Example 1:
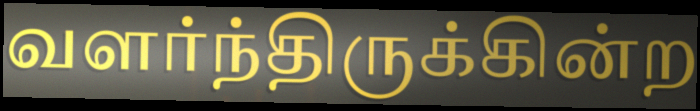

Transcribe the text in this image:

வளர்ந்திருக்கின்ற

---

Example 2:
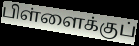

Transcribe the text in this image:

பிள்ளைக்குப்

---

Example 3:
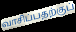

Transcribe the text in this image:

வாசிப்பதற்குப்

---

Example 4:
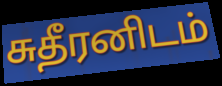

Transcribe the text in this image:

சுதீரனிடம்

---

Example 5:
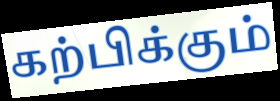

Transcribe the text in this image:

கற்பிக்கும்